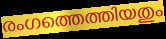
രംഗത്തെത്തിയതും